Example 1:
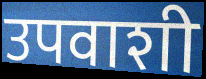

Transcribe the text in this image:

उपवाशी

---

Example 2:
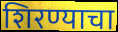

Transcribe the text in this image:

शिरण्याचा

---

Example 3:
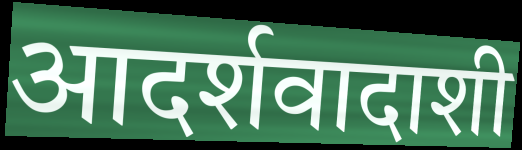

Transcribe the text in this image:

आदर्शवादाशी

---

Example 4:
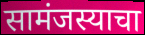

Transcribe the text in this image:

सामंजस्याचा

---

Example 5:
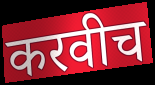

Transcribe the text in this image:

करवीच